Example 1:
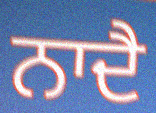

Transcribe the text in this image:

ਨਾਦੈ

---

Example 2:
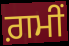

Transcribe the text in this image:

ਗ਼ਮੀਂ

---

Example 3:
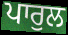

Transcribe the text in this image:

ਪਾਰੁਲ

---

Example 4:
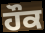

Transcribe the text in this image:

ਹੌਕ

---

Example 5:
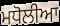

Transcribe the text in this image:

ਮਧੋਲੀਆ